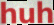
huh